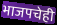
भाजपचेही